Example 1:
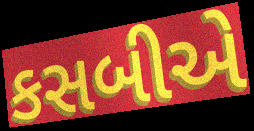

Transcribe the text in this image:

કસબીએ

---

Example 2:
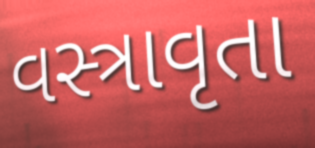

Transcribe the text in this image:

વસ્ત્રાવૃતા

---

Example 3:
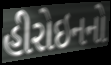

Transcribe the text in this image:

હીરોઇનનો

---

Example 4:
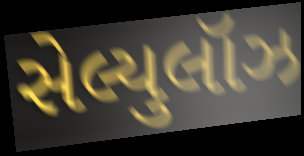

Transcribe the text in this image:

સેલ્યુલૉઝ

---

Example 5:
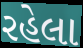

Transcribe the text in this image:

રહેલા